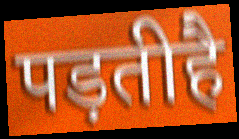
पड़तीहै